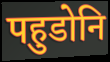
पहुडोनि